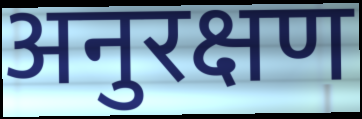
अनुरक्षण